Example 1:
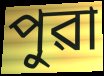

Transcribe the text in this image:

পুৱা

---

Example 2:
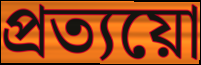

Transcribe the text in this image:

প্ৰত্যয়ো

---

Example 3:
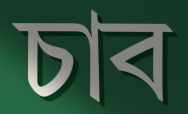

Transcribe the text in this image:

চাব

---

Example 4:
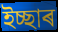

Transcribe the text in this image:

ইচ্ছাৰ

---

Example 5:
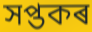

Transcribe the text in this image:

সপ্তকৰ